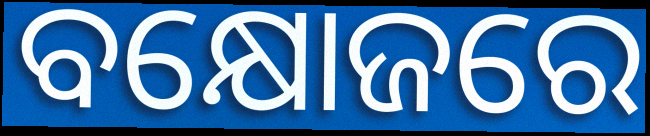
ବକ୍ଷୋଜରେ